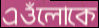
এওঁলোকে